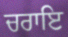
ਚਰਾਇ